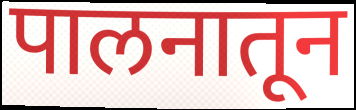
पालनातून